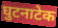
घुटनाटेक